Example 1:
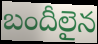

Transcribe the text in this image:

బందీలైన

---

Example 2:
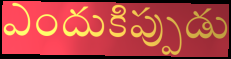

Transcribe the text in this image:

ఎందుకిప్పుడు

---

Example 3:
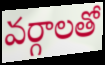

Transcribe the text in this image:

వర్గాలతో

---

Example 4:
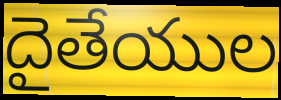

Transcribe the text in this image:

దైతేయుల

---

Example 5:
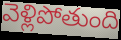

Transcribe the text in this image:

వెళ్లిపోతుంది